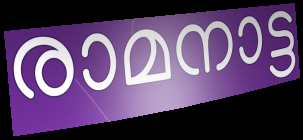
രാമനാട്ട